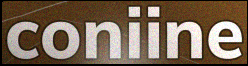
coniine